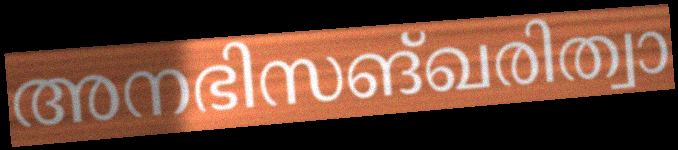
അനഭിസങ്ഖരിത്വാ